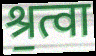
श्र॒त्वा